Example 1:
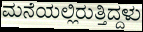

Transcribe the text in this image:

ಮನೆಯಲ್ಲಿರುತ್ತಿದ್ದಳು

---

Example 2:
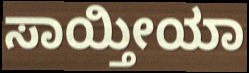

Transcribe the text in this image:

ಸಾಯ್ತೀಯಾ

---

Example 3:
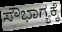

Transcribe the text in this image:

ಸೌಭಾಗ್ಯಕ್ಕೆ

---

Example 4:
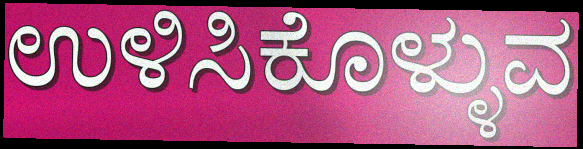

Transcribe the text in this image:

ಉಳಿಸಿಕೊಳ್ಳುವ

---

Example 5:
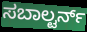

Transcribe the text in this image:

ಸಬಾಲ್ಟರ್ನ್